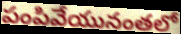
పంపివేయునంతలో